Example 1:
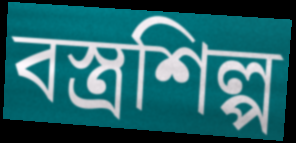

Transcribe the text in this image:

বস্ত্ৰশিল্প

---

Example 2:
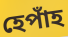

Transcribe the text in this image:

হেপাঁহ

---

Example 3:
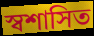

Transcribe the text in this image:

স্বশাসিত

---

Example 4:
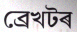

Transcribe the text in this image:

ব্ৰেখটৰ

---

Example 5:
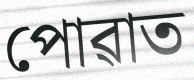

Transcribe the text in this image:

পোৱাত